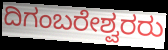
ದಿಗಂಬರೇಶ್ವರರು